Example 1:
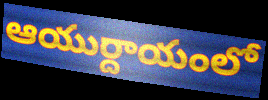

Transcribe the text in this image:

ఆయుర్దాయంలో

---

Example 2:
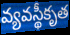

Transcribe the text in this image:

వ్యవస్థీకృత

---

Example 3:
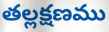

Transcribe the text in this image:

తల్లక్షణము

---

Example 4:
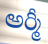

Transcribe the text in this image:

అర్మీ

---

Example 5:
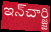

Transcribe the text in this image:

ఇన్‌చార్జ్జి